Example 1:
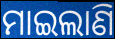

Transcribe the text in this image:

ମାଇଲାଣି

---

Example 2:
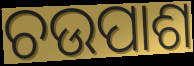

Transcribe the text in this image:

ଚଉପାଶ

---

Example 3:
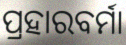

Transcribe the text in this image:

ପ୍ରହାରବର୍ମା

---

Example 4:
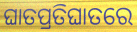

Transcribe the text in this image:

ଘାତପ୍ରତିଘାତରେ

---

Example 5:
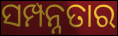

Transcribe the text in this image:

ସମ୍ପନ୍ନତାର